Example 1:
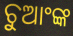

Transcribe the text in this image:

ଚୁଆଂଙ୍କ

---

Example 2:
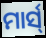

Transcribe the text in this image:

ମାର୍ସ୍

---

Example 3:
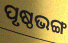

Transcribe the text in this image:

ପୃଷ୍ଠଭଙ୍ଗ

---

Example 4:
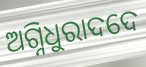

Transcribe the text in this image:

ଅଗ୍ନିଧୁରାଦଦେ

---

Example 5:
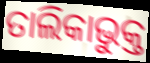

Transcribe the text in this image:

ତାଲିକାଭୁକ୍ତ